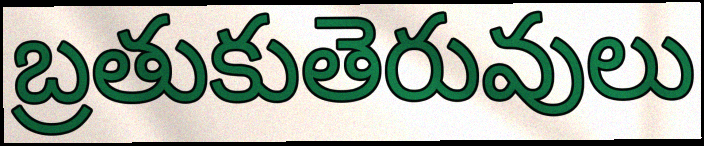
బ్రతుకుతెరువులు